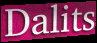
Dalits